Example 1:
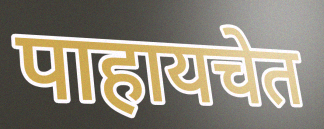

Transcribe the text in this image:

पाहायचेत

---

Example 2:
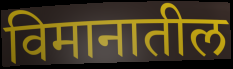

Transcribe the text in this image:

विमानातील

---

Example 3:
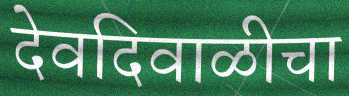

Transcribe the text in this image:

देवदिवाळीचा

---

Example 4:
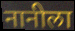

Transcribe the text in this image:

नानीला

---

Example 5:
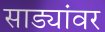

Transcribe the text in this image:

साड्यांवर